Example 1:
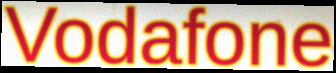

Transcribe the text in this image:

Vodafone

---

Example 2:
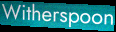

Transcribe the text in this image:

Witherspoon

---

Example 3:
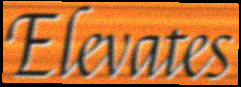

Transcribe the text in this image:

Elevates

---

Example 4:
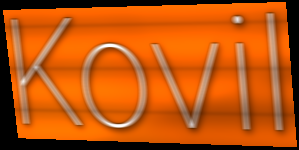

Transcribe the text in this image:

Kovil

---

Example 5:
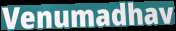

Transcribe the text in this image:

Venumadhav